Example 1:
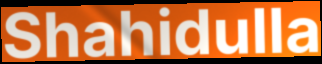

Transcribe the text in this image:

Shahidulla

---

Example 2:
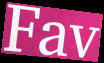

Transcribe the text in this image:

Fav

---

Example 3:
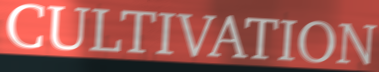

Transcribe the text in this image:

CULTIVATION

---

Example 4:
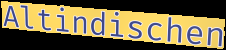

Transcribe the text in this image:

Altindischen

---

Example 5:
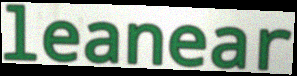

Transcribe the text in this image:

leanear